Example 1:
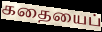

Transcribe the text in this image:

கதையைப்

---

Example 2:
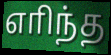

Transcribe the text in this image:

எரிந்த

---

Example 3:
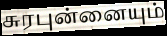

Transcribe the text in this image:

சுரபுன்னையும்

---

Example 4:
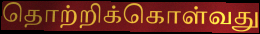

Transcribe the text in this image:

தொற்றிக்கொள்வது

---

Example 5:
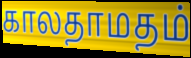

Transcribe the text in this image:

காலதாமதம்